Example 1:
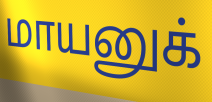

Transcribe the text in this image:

மாயனுக்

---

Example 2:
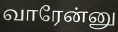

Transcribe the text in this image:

வாரேன்னு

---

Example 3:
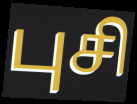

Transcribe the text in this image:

புசி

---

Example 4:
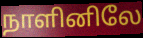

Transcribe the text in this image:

நாளினிலே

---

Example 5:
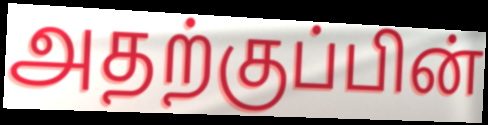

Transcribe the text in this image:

அதற்குப்பின்